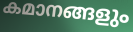
കമാനങ്ങളും